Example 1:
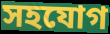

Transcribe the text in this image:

সহযোগ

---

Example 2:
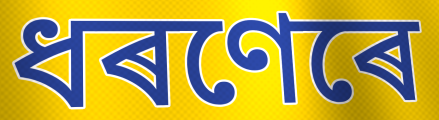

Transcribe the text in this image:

ধৰণেৰে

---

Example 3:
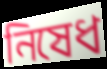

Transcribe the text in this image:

নিষেধ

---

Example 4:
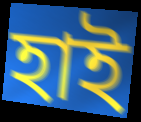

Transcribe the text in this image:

হাই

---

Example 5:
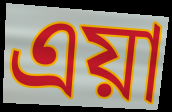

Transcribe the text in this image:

এয়া